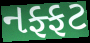
નફ્ફટ